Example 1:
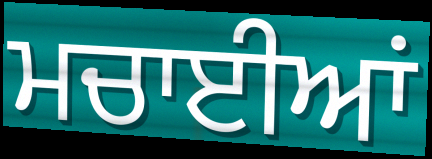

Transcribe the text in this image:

ਮਚਾਈਆਂ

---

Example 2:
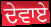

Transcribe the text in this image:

ਦੇਵਾਏ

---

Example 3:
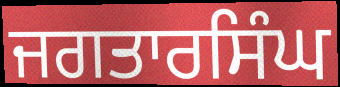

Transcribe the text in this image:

ਜਗਤਾਰਸਿੰਘ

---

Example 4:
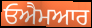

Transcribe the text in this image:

ਓਐਮਆਰ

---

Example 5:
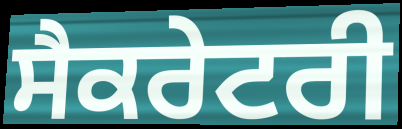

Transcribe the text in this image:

ਸੈਕਰੇਟਰੀ